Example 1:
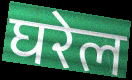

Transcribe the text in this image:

घरेल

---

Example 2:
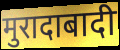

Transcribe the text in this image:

मुरादाबादी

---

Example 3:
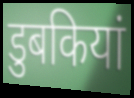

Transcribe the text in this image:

डुबकियां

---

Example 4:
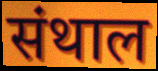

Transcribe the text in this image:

संथाल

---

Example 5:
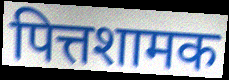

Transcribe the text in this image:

पित्तशामक